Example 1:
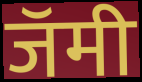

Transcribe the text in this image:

जॅमी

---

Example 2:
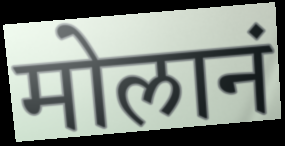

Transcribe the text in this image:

मोलानं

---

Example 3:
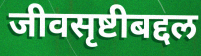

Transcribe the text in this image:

जीवसृष्टीबद्दल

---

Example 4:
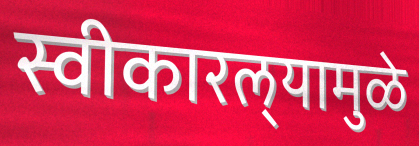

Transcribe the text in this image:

स्वीकारल्यामुळे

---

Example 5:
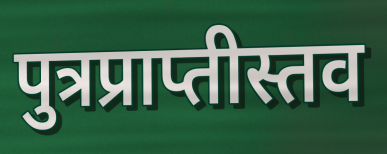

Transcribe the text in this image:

पुत्रप्राप्तीस्तव